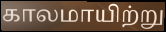
காலமாயிற்று